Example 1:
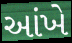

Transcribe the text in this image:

આંખે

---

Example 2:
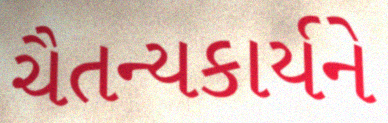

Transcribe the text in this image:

ચૈતન્યકાર્યને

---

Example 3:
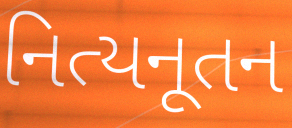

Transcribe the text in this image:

નિત્યનૂતન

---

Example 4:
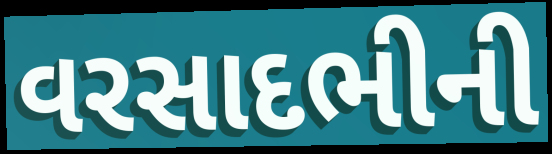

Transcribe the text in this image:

વરસાદભીની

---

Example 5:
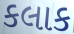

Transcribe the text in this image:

કલાક